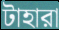
টাহারা